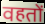
वहतों